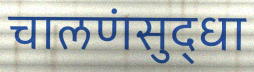
चालणंसुद्धा